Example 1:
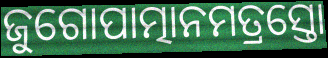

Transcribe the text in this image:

ଜୁଗୋପାତ୍ମାନମତ୍ରସ୍ତୋ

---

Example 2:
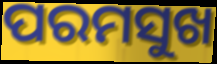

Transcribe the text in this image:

ପରମସୁଖ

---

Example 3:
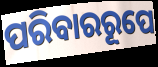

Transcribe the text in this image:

ପରିବାରରୂପେ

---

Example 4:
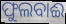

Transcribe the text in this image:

ଫୁଲବାଈ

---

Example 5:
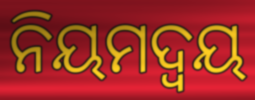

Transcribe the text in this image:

ନିୟମଦ୍ୱୟ